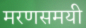
मरणसमयी